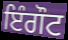
ਇੰਗੌਟ